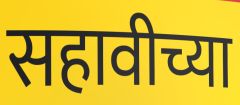
सहावीच्या